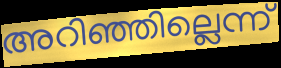
അറിഞ്ഞില്ലെന്ന്